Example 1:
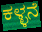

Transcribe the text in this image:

ಕಳ್ಳನೆ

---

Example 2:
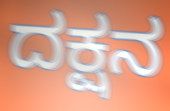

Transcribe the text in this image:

ದಕ್ಷನ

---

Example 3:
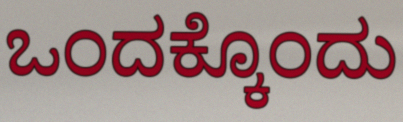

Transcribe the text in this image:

ಒಂದಕ್ಕೊಂದು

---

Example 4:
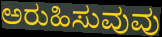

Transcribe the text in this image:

ಅರುಹಿಸುವುವು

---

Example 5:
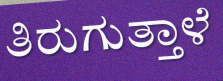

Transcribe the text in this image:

ತಿರುಗುತ್ತಾಳೆ